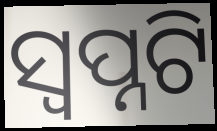
ସ୍ୱପ୍ନଟି